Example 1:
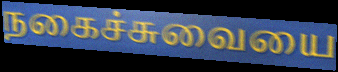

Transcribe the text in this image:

நகைச்சுவையை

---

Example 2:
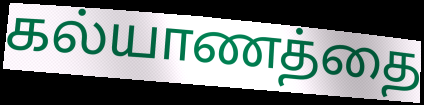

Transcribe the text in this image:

கல்யாணத்தை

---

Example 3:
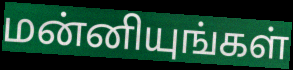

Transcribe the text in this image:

மன்னியுங்கள்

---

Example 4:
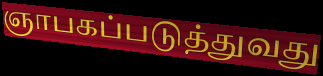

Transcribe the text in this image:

ஞாபகப்படுத்துவது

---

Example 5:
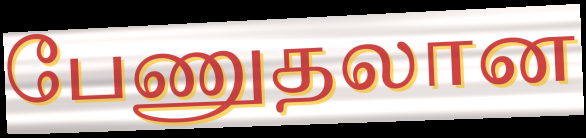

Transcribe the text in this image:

பேணுதலான